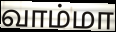
வாம்மா